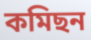
কমিছন